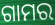
ଗାମର